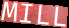
MILL